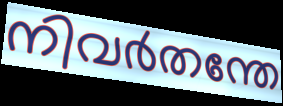
നിവർതന്തേ